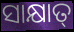
ସାକ୍ଷାତ୍